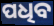
ପଧିବ